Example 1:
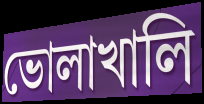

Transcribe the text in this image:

ভোলাখালি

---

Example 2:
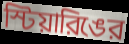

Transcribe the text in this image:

স্টিয়ারিঙের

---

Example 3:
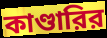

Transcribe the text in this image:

কাণ্ডারির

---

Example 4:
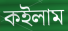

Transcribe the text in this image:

কইলাম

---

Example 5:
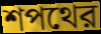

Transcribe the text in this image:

শপথের